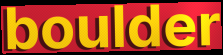
boulder